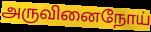
அருவினைநோய்